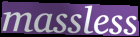
massless